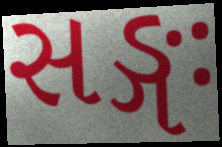
સઙ્ગઃ